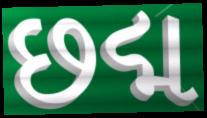
છદ્મ